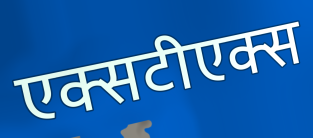
एक्सटीएक्स